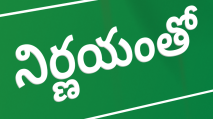
నిర్ణయంతో